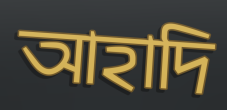
আহাদি